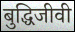
बुद्धिजीवी